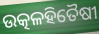
ଉତ୍କଳହିତୈଷୀ